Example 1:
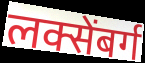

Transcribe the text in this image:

लक्सेंबर्ग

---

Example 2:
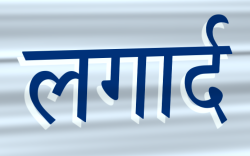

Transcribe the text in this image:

लगार्द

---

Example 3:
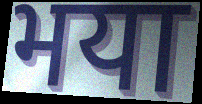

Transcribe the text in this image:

भया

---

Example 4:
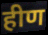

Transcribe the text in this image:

हीण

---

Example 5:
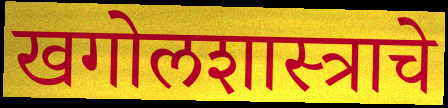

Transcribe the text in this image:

खगोलशास्त्राचे